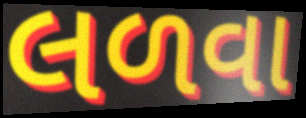
લળવા